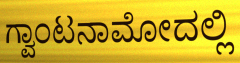
ಗ್ವಾಂಟನಾಮೋದಲ್ಲಿ